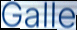
Galle